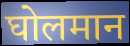
घोलमान